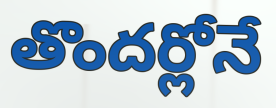
తొందర్లోనే